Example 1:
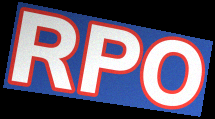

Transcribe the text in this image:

RPO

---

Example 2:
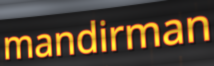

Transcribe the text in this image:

mandirman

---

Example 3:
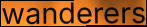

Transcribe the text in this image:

wanderers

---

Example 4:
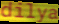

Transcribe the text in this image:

dilya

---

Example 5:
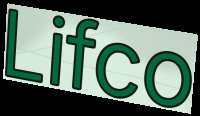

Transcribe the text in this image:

Lifco